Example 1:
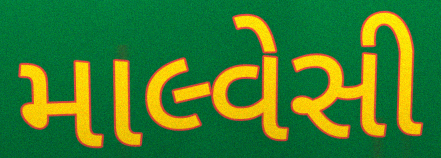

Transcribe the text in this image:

માલ્વેસી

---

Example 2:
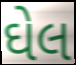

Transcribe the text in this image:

ઘેલ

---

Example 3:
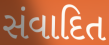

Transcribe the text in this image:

સંવાદિત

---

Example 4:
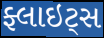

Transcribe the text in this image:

ફ્લાઇટ્સ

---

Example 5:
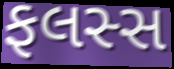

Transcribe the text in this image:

ફલસ્સ